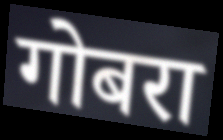
गोबरा